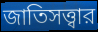
জাতিসত্ত্বার